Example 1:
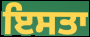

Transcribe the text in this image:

ਇਸਤਾ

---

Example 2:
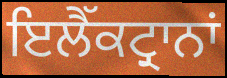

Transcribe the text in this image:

ਇਲੈੱਕਟ੍ਰਾਨਾਂ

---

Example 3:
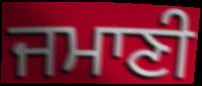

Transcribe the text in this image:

ਜਮਾਣੀ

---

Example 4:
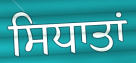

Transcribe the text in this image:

ਸਿਧਾਤਾਂ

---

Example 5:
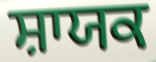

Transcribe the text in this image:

ਸ਼ਾਯਕ